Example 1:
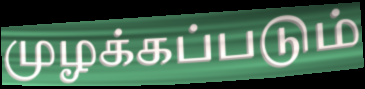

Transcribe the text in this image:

முழக்கப்படும்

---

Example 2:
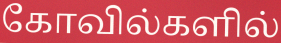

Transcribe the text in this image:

கோவில்களில்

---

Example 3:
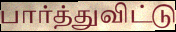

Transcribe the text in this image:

பார்த்துவிட்டு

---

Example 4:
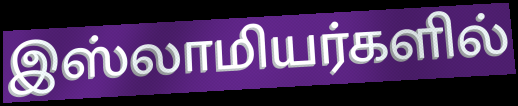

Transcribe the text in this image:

இஸ்லாமியர்களில்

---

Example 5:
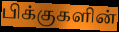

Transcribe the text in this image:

பிக்குகளின்